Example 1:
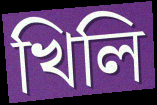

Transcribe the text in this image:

খিলি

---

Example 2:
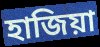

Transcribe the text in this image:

হাজিয়া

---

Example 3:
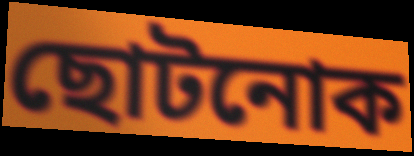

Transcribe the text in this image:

ছোটনোক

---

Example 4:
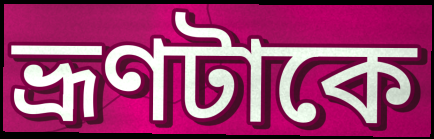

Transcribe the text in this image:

ভ্রূণটাকে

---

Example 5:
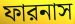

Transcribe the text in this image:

ফারনাস